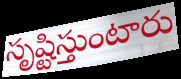
సృష్టిస్తుంటారు